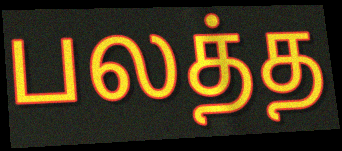
பலத்த